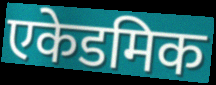
एकेडमिक